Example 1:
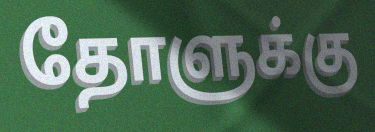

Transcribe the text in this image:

தோளுக்கு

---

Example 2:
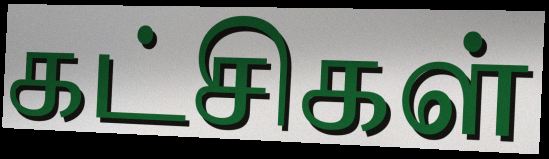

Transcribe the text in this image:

கட்சிகள்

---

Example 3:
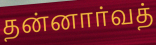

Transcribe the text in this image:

தன்னார்வத்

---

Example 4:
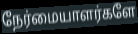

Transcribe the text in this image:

நேர்மையாளர்களே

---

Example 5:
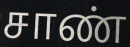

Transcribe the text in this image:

சாண்